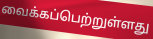
வைக்கப்பெற்றுள்ளது